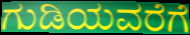
ಗುಡಿಯವರೆಗೆ